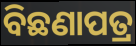
ବିଛଣାପତ୍ର